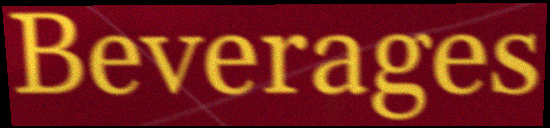
Beverages